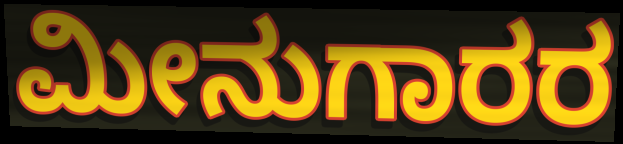
ಮೀನುಗಾರರ